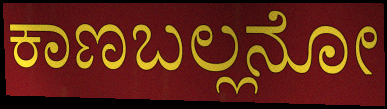
ಕಾಣಬಲ್ಲನೋ